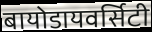
बायोडायवर्सिटी